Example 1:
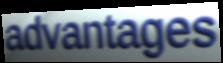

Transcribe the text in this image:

advantages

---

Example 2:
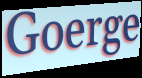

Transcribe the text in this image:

Goerge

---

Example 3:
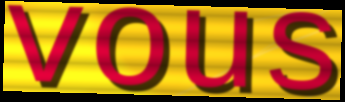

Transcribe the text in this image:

vous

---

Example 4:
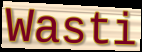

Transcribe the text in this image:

Wasti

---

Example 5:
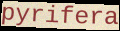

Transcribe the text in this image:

pyrifera